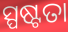
ସ୍ପଷ୍ଟତା